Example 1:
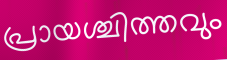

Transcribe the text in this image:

പ്രായശ്ചിത്തവും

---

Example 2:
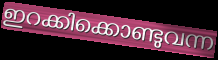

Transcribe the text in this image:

ഇറക്കിക്കൊണ്ടുവന്ന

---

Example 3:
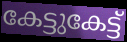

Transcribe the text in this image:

കേട്ടുകേട്ട്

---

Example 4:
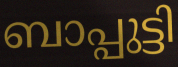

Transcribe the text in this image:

ബാപ്പുട്ടി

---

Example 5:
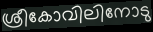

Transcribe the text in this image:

ശ്രീകോവിലിനോടു